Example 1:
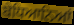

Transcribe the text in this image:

ਬੇਧਿਆਨਿਆਂ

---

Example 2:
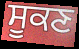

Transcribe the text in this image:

ਸੂਕਣ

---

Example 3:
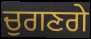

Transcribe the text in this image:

ਚੁਗਣਗੇ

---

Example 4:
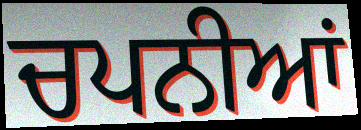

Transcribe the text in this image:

ਚਪਨੀਆਂ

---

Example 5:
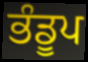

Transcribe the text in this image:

ਭੰਡੂਪ